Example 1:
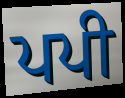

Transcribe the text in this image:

ਪਪੀ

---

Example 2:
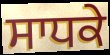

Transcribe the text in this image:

ਸਾਧਕੇ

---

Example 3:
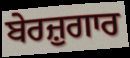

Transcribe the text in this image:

ਬੇਰਜ਼ੁਗਾਰ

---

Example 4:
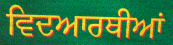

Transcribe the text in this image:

ਵਿਦਆਰਥੀਆਂ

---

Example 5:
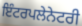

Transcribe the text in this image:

ਇੰਟਰਪਲੇਨੇਟਰੀ